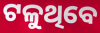
ଟଳୁଥିବେ